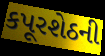
કપૂરશેઠની